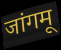
जांगमू